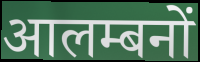
आलम्बनों